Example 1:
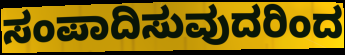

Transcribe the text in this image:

ಸಂಪಾದಿಸುವುದರಿಂದ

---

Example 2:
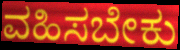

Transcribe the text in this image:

ವಹಿಸಬೇಕು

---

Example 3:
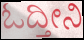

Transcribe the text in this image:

ಓದ್ತೀನಿ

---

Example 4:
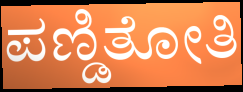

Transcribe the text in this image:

ಪಣ್ಡಿತೋತಿ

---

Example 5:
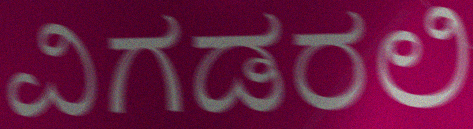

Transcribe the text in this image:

ವಿಗಡರಲಿ